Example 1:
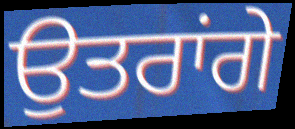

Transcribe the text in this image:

ਉਤਰਾਂਗੇ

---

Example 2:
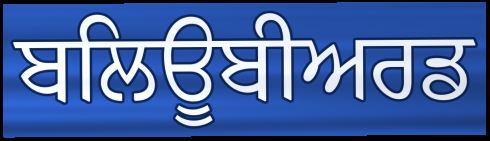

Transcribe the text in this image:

ਬਲਿਊਬੀਅਰਡ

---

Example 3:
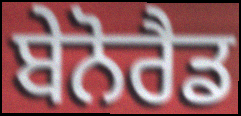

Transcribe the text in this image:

ਬੇਨੋਰੈਡ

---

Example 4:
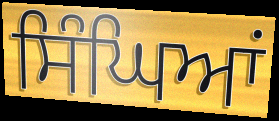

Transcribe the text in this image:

ਸਿੰਘਿਆਂ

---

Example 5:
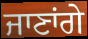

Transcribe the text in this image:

ਜਾਣਾਂਗੇ